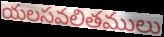
యలసవలితములు